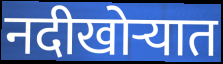
नदीखोर्‍यात